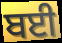
ਬਈ